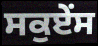
ਸਕੁਏਂਸ